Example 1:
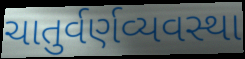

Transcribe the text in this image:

ચાતુર્વર્ણવ્યવસ્થા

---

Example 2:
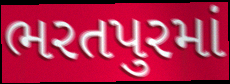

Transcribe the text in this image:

ભરતપુરમાં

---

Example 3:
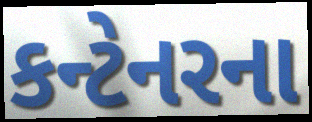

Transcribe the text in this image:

કન્ટેનરના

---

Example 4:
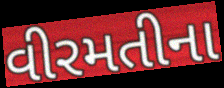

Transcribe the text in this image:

વીરમતીના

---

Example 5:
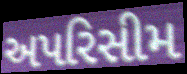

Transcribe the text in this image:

અપરિસીમ